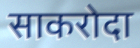
साकरोदा